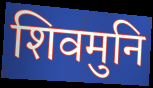
शिवमुनि